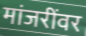
मांजरींवर